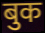
बुक